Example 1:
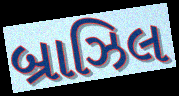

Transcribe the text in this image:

બ્રાઝિલ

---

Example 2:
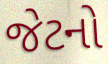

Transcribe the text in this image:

જેટનો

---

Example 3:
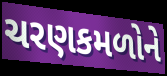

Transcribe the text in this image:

ચરણકમળોને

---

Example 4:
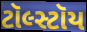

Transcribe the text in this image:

ટૉલ્સ્ટૉય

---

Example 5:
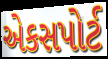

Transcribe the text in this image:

એકસપોર્ટ